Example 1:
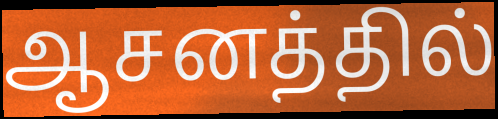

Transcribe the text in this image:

ஆசனத்தில்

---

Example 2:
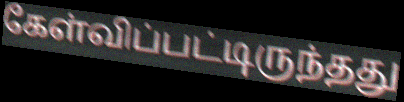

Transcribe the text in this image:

கேள்விப்பட்டிருந்தது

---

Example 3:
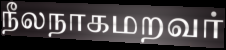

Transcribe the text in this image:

நீலநாகமறவர்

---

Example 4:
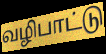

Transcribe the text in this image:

வழிபாட்டு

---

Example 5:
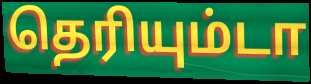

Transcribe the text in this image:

தெரியும்டா